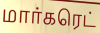
மார்கரெட்